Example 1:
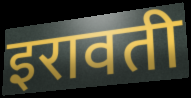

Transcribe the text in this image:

इरावती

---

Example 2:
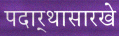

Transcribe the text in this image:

पदार्थासारखे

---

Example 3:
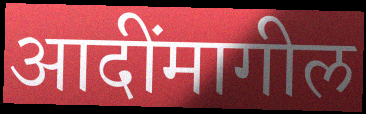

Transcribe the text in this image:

आदींमागील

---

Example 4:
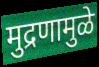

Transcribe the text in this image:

मुद्रणामुळे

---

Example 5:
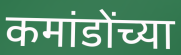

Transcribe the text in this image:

कमांडोंच्या